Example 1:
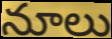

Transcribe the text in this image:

నూలు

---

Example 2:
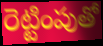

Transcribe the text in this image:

రెట్టింపుతో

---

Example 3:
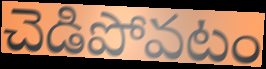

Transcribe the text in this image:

చెడిపోవటం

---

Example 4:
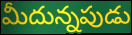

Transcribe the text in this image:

మీదున్నపుడు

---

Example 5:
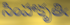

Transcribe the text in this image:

సింహాకృతిఁ